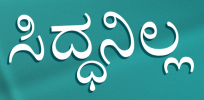
ಸಿದ್ಧನಿಲ್ಲ